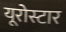
यूरोस्टार